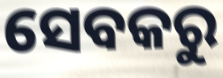
ସେବକରୁ